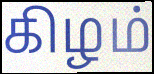
கிழம்